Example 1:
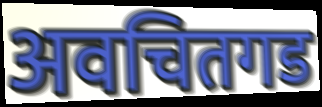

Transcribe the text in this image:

अवचितगड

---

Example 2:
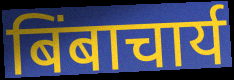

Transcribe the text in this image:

बिंबाचार्य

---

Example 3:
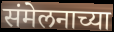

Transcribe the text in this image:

संमेलनाच्या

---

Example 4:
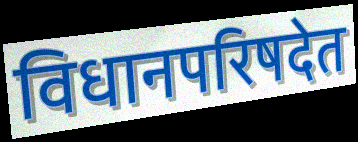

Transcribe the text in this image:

विधानपरिषदेत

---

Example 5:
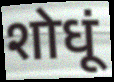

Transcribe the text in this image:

शोधूं